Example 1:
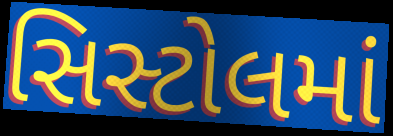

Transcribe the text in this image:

સિસ્ટોલમાં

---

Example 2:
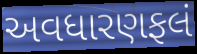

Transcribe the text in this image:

અવધારણફલં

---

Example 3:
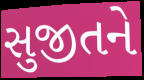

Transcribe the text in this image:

સુજીતને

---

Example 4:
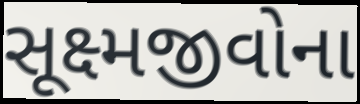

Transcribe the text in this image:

સૂક્ષ્મજીવોના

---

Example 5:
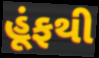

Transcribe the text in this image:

હૂંફથી